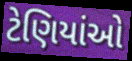
ટેણિયાંઓ